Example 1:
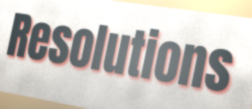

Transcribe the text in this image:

Resolutions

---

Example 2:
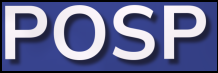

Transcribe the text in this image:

POSP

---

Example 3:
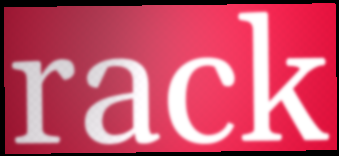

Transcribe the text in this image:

rack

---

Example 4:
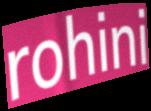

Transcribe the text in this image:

rohini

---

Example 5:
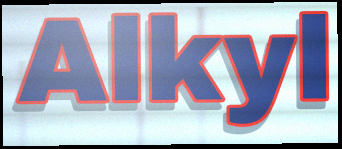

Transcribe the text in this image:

Alkyl